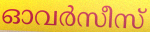
ഓവർസീസ്